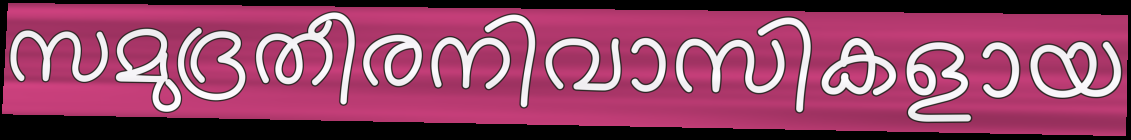
സമുദ്രതീരനിവാസികളായ